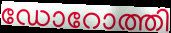
ഡോറോത്തി